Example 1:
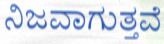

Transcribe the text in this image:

ನಿಜವಾಗುತ್ತವೆ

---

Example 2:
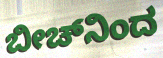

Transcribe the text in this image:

ಬೀಚ್‌ನಿಂದ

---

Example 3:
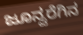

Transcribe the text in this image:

ಜೂನ್ವರೆಗಿನ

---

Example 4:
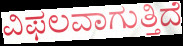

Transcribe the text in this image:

ವಿಫಲವಾಗುತ್ತಿದೆ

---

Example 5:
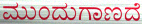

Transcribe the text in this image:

ಮುಂದುಗಾಣದೆ